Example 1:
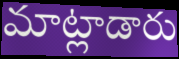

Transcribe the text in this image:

మాట్లాడారు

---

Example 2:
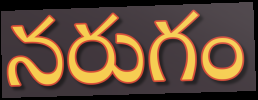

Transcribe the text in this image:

నరుగం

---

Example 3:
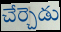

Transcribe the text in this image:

చేర్చెడు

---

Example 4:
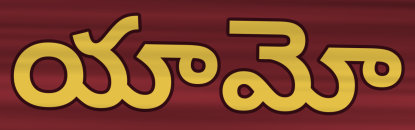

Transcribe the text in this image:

యామో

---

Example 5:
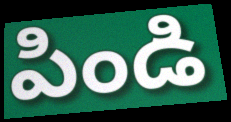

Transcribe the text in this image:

పిండి